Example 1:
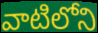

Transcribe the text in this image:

వాటిలోని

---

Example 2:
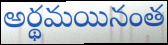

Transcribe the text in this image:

అర్థమయినంత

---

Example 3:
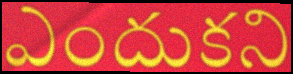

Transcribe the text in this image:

ఎందుకని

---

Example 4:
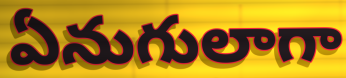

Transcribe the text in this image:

ఏనుగులాగా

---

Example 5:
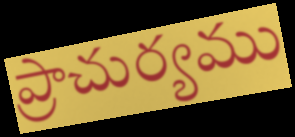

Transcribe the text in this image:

ప్రాచుర్యము